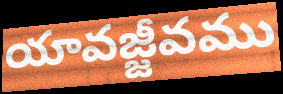
యావజ్జీవము